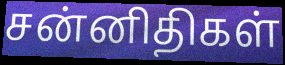
சன்னிதிகள்